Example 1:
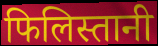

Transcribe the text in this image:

फिलिस्तानी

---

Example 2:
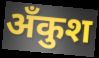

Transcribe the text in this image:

अँकुश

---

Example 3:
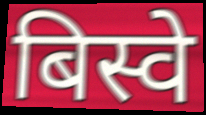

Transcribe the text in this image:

बिस्वे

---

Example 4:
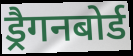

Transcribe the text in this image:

ड्रैगनबोर्ड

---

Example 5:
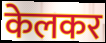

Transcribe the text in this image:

केलकर